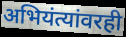
अभियंत्यांवरही